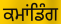
ਕਮਾਂਡਿੰਗ